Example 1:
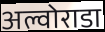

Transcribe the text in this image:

अल्वोराडा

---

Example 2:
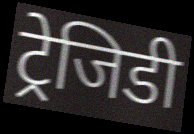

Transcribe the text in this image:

ट्रेजिडी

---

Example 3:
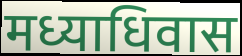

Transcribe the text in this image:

मध्याधिवास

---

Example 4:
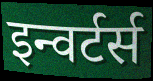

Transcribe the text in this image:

इन्वर्टर्स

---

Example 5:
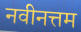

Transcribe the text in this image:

नवीनत्तम